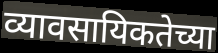
व्यावसायिकतेच्या